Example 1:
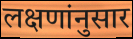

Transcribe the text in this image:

लक्षणांनुसार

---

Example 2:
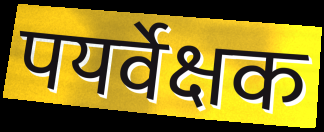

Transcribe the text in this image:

पयर्वेक्षक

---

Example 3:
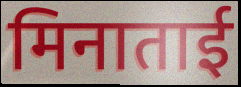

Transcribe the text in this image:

मिनाताई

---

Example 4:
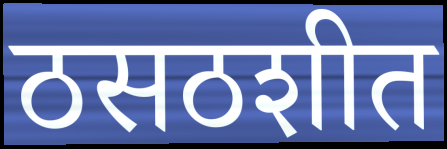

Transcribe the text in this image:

ठसठशीत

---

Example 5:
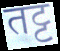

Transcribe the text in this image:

तट्ट